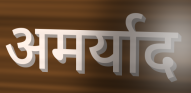
अमर्याद